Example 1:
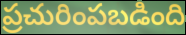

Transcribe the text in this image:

ప్రచురింపబడింది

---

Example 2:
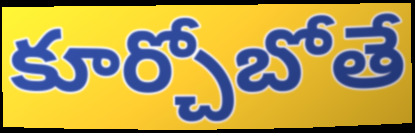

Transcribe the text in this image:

కూర్చోబోతే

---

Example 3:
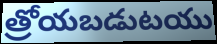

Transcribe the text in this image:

త్రోయబడుటయు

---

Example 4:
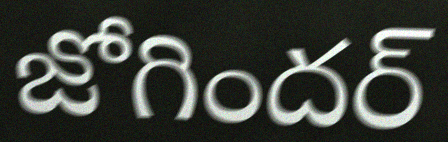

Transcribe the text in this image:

జోగిందర్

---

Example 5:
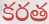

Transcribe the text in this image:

కరత